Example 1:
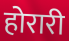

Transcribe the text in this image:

होरारी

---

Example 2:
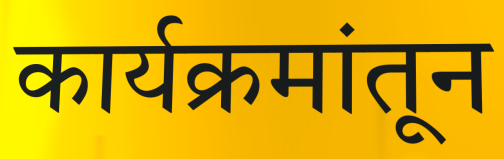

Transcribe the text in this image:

कार्यक्रमांतून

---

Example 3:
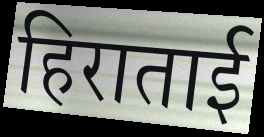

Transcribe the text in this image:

हिराताई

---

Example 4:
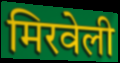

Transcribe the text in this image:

मिरवेली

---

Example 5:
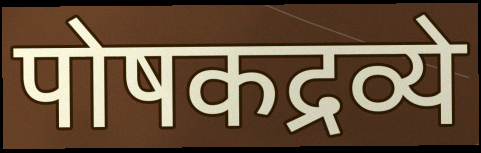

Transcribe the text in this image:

पोषकद्रव्ये